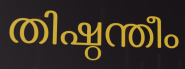
തിഷ്ഠന്തീം